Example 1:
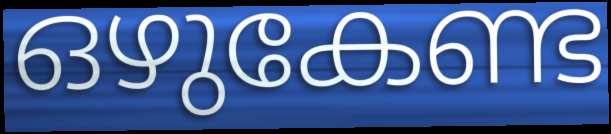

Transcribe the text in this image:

ഒഴുകേണ്ട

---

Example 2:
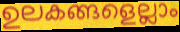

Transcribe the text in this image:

ഉലകങ്ങളെല്ലാം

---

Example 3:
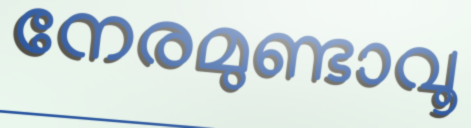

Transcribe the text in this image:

നേരമുണ്ടാവൂ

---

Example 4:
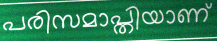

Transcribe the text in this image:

പരിസമാപ്തിയാണ്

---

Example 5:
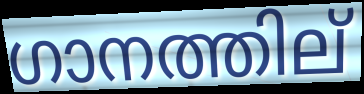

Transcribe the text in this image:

ഗാനത്തില്